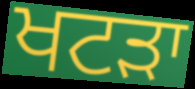
ਖਟੜਾ